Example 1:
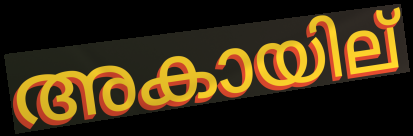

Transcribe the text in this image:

അകായില്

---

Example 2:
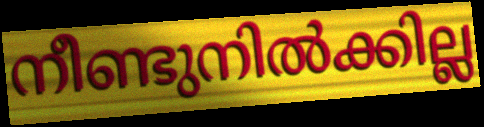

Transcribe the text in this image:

നീണ്ടുനിൽക്കില്ല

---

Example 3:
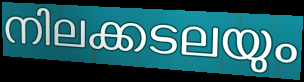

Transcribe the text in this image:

നിലക്കടലയും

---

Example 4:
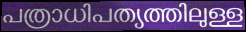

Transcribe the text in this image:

പത്രാധിപത്യത്തിലുള്ള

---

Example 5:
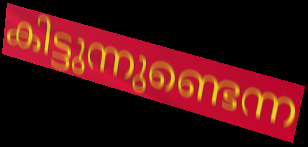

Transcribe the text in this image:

കിട്ടുന്നുണ്ടെന്ന